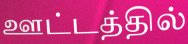
ஊட்டத்தில்